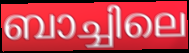
ബാച്ചിലെ